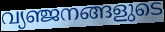
വ്യഞ്ജനങ്ങളുടെ